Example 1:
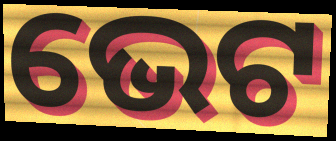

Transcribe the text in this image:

ଭେଟ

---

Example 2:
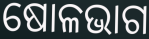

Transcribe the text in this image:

ଷୋଳଭାଗ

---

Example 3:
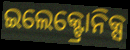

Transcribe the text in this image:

ଇଲେକ୍ଟ୍ରୋନିକ୍ସ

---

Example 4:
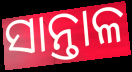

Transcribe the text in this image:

ସାନ୍ତାଳ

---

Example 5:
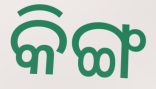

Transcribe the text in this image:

କିଙ୍ଗ